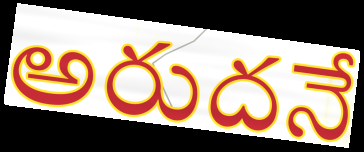
అరుదనే